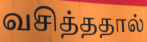
வசித்ததால்